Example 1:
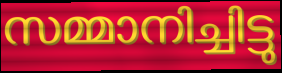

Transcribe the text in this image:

സമ്മാനിച്ചിട്ടു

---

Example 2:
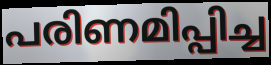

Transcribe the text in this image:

പരിണമിപ്പിച്ച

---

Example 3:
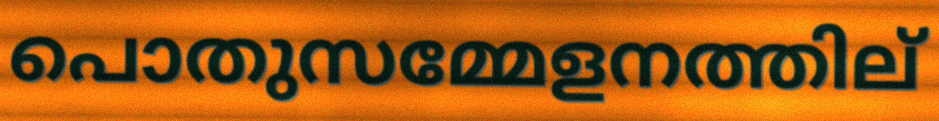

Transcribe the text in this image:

പൊതുസമ്മേളനത്തില്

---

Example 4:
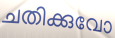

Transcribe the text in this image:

ചതിക്കുവോ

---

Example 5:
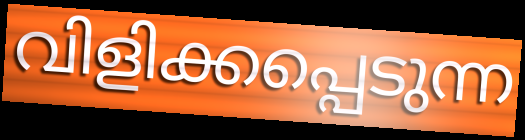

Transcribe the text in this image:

വിളിക്കപ്പെടുന്ന